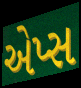
એપ્સ